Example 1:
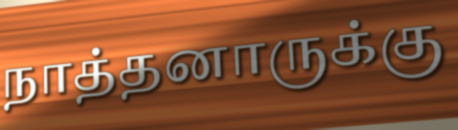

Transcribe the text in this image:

நாத்தனாருக்கு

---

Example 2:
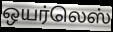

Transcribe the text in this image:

ஒயர்லெஸ்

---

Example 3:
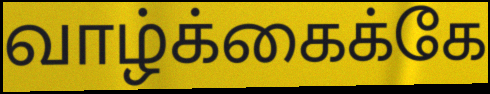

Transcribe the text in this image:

வாழ்க்கைக்கே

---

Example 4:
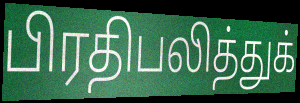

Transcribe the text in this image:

பிரதிபலித்துக்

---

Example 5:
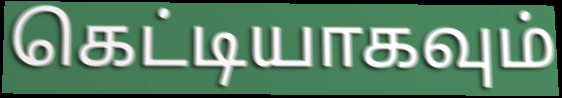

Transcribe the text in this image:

கெட்டியாகவும்